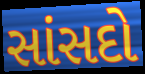
સાંસદો